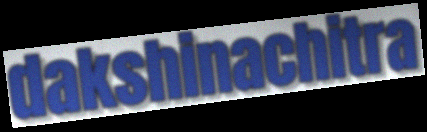
dakshinachitra